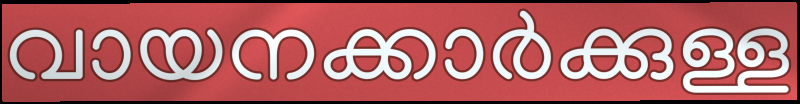
വായനക്കാർക്കുള്ള